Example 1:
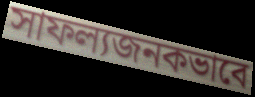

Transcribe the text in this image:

সাফল্যজনকভাবে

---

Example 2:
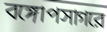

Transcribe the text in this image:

বঙ্গোপসাগরে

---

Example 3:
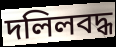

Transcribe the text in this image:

দলিলবদ্ধ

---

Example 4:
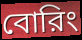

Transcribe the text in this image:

বোরিং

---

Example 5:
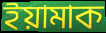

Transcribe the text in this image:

ইয়ামাক